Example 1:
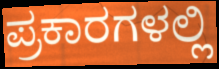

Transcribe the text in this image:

ಪ್ರಕಾರಗಳಲ್ಲಿ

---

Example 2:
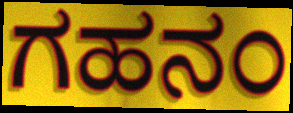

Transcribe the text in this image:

ಗಹನಂ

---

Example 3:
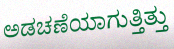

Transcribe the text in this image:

ಅಡಚಣೆಯಾಗುತ್ತಿತ್ತು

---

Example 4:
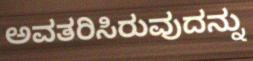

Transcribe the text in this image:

ಅವತರಿಸಿರುವುದನ್ನು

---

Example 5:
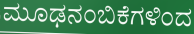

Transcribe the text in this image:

ಮೂಢನಂಬಿಕೆಗಳಿಂದ